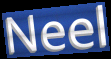
Neel